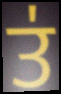
उ॑